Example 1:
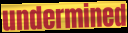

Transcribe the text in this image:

undermined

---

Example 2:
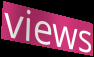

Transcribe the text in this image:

views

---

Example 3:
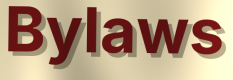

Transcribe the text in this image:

Bylaws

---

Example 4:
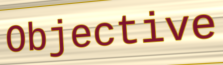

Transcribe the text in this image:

Objective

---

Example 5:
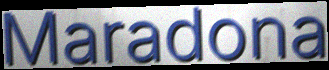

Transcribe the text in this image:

Maradona